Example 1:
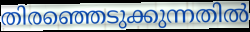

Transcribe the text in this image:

തിരഞ്ഞെടുക്കുന്നതിൽ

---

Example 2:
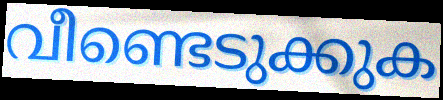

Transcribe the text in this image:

വീണ്ടെടുക്കുക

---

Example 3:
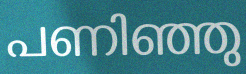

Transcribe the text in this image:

പണിഞ്ഞു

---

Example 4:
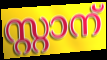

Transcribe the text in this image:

സ്റ്റാന്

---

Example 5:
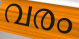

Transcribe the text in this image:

വരം